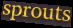
sprouts